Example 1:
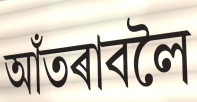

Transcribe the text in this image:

আঁতৰাবলৈ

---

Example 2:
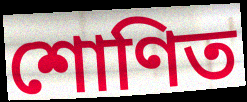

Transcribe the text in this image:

শোণিত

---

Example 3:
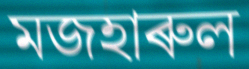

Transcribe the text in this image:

মজহাৰুল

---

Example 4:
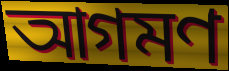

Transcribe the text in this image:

আগমণ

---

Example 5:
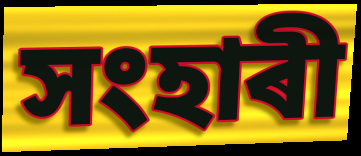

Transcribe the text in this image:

সংহাৰী